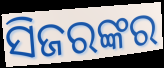
ସିଜରଙ୍କର